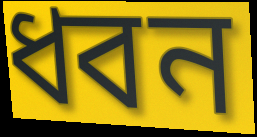
ধবন